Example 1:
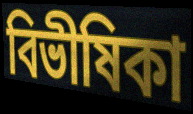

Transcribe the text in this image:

বিভীষিকা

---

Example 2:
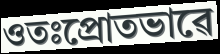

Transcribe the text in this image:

ওতঃপ্ৰোতভাৱে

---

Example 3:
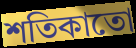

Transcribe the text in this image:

শতিকাতো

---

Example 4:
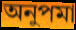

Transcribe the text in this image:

অনুপমা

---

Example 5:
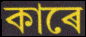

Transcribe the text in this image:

কাৰে